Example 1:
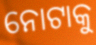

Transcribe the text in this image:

ନୋଟାକୁ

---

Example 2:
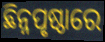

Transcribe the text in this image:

ଛିନ୍ନପୃଷ୍ଠାରେ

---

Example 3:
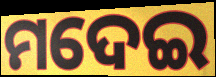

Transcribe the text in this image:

ମଦେଇ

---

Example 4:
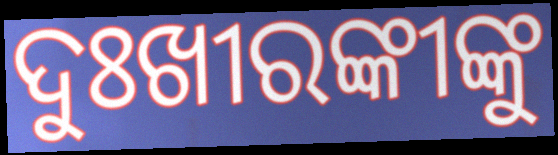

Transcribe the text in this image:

ଦୁଃଖୀରଙ୍କୀଙ୍କୁ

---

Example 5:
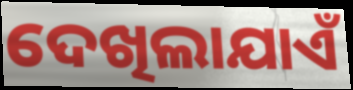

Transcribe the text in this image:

ଦେଖିଲାଯାଏଁ